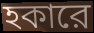
হকারে